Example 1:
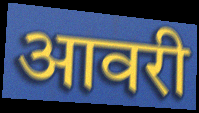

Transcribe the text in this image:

आवरी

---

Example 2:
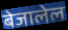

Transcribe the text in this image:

बेजालेल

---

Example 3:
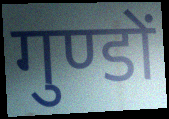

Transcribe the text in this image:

गुण्डों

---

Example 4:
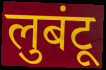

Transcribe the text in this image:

लुबंटू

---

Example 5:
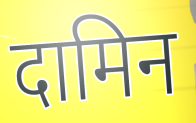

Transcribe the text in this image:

दामिन